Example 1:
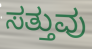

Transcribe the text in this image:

ಸತ್ತುವು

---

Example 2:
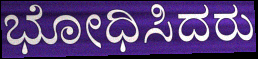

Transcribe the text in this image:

ಭೋಧಿಸಿದರು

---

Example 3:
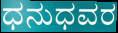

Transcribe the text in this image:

ಧನುಧವರ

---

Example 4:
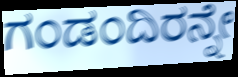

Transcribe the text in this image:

ಗಂಡಂದಿರನ್ನೇ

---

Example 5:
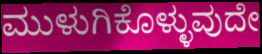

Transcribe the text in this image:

ಮುಳುಗಿಕೊಳ್ಳುವುದೇ